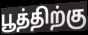
பூத்திற்கு